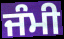
ਜੰਮੀ